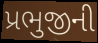
પ્રભુજીની